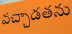
వచ్చాడతను